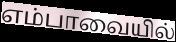
எம்பாவையில்